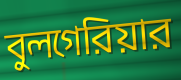
বুলগেরিয়ার